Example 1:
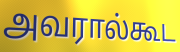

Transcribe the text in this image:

அவரால்கூட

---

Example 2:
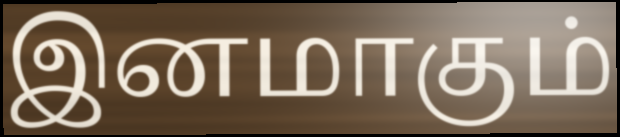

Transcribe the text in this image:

இனமாகும்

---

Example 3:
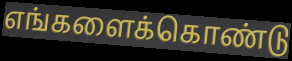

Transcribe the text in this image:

எங்களைக்கொண்டு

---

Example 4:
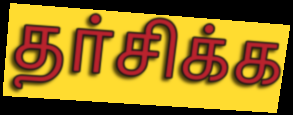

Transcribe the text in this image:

தர்சிக்க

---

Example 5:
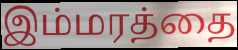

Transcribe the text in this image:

இம்மரத்தை